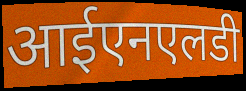
आईएनएलडी